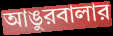
আঙুরবালার